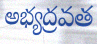
అభ్యద్రవత